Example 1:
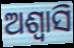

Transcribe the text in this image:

ଅଶ୍ୱାସି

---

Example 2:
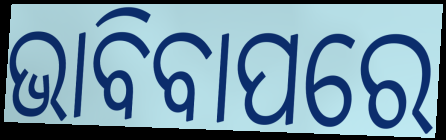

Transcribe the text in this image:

ଭାବିବାପରେ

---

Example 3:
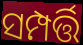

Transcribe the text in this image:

ସମ୍ପର୍ତ୍ତି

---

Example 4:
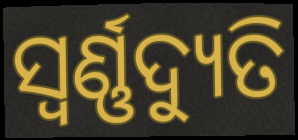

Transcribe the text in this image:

ସ୍ୱର୍ଣ୍ଣଦ୍ୟୁତି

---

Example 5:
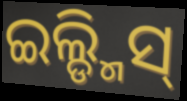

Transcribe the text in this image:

ଇଲ୍ଡ୍ମିସ୍